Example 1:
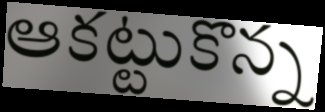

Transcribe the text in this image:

ఆకట్టుకొన్న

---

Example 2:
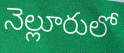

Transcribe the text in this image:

నెల్లూరులో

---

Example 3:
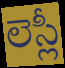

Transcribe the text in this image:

లెస్లీ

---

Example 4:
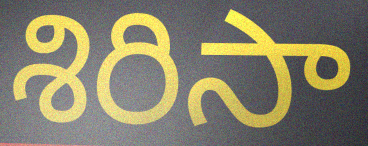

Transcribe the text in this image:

శిరిసా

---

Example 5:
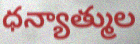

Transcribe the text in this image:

ధన్యాత్ముల